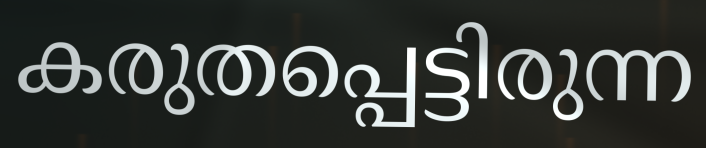
കരുതപ്പെട്ടിരുന്ന